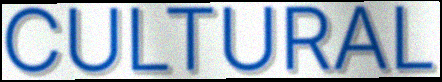
CULTURAL